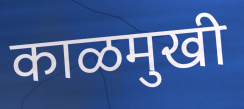
काळमुखी